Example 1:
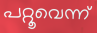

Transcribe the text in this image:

പറ്റൂവെന്ന്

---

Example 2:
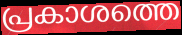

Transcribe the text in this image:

പ്രകാശത്തെ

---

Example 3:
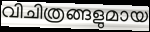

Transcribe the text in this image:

വിചിത്രങ്ങളുമായ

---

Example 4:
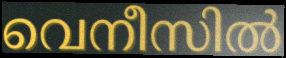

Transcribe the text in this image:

വെനീസിൽ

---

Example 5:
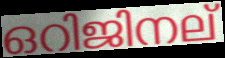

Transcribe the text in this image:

ഒറിജിനല്